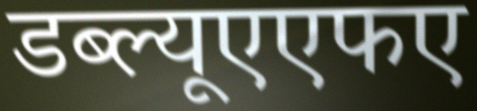
डब्ल्यूएएफए